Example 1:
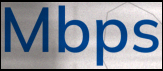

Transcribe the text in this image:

Mbps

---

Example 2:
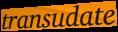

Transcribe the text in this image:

transudate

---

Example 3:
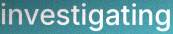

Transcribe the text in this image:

investigating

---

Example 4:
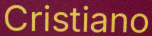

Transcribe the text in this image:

Cristiano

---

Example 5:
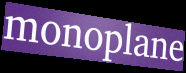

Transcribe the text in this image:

monoplane